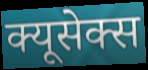
क्यूसेक्स